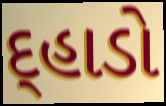
દ્હાડો